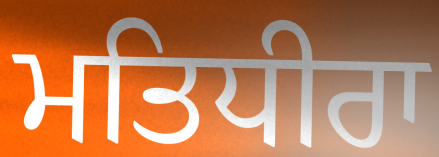
ਮਤਿਧੀਰਾ